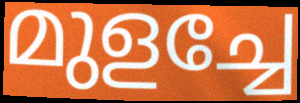
മുളച്ചേ